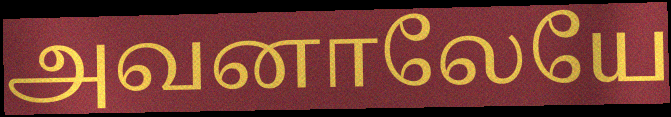
அவனாலேயே